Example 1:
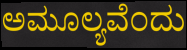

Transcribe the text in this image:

ಅಮೂಲ್ಯವೆಂದು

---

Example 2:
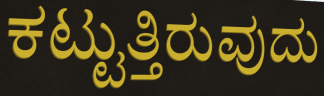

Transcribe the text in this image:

ಕಟ್ಟುತ್ತಿರುವುದು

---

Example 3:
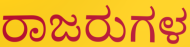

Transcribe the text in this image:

ರಾಜರುಗಳ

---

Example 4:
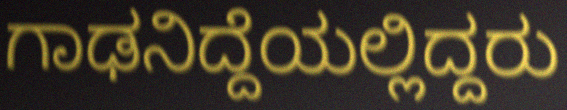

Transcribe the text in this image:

ಗಾಢನಿದ್ದೆಯಲ್ಲಿದ್ದರು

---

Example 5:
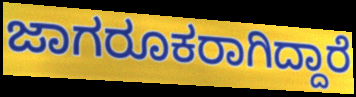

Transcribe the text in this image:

ಜಾಗರೂಕರಾಗಿದ್ದಾರೆ